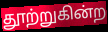
தூற்றுகின்ற